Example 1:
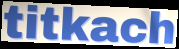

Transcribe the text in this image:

titkach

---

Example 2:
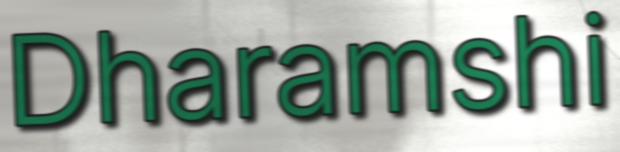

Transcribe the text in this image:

Dharamshi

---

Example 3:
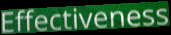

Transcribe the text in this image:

Effectiveness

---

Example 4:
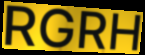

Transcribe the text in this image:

RGRH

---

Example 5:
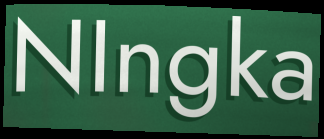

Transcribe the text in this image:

NIngka